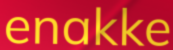
enakke